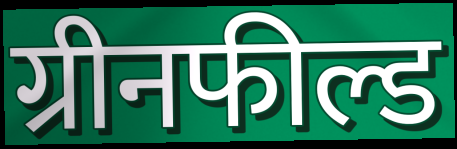
ग्रीनफील्‍ड